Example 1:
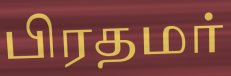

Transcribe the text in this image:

பிரதமர்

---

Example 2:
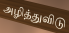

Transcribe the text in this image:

அழித்துவிடு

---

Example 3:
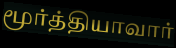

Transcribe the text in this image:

மூர்த்தியாவார்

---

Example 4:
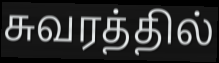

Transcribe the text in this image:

சுவரத்தில்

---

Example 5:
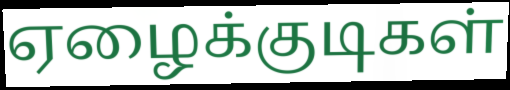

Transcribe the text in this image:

ஏழைக்குடிகள்